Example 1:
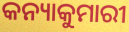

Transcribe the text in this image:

କନ୍ୟାକୁମାରୀ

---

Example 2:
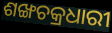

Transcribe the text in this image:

ଶଙ୍ଖଚକ୍ରଧାରୀ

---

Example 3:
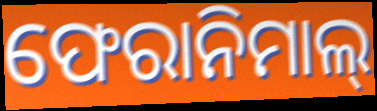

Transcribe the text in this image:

ଫେରାନିମାଲ୍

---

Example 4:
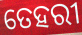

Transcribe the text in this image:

ତେହରୀ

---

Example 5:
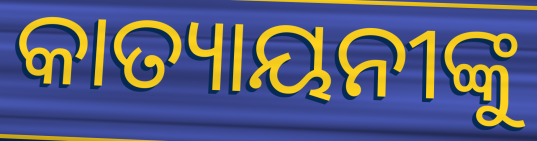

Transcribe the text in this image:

କାତ୍ୟାୟନୀଙ୍କୁ